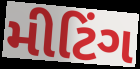
મીટિંગ